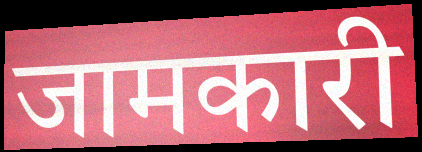
जामकारी